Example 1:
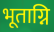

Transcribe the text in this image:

भूताग्नि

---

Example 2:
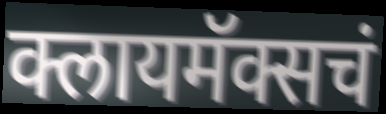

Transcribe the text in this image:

क्लायमॅक्सचं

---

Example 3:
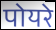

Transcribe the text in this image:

पोयरे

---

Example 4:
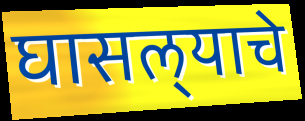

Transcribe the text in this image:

घासल्याचे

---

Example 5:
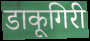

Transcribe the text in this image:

डाकूगिरी